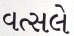
વત્સલે